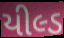
યીલ્ડ